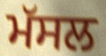
ਮੱਸਲ